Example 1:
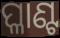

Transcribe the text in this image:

ପ୍ଳାଣ୍ଟ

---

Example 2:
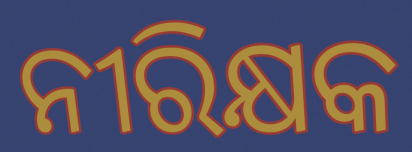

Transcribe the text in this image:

ନୀରିକ୍ଷକ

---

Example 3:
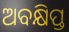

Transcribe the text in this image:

ଅବକ୍ଷିପ୍ତ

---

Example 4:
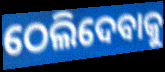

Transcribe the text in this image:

ଠେଲିଦେବାକୁ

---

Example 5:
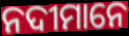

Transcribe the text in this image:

ନଦୀମାନେ